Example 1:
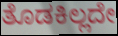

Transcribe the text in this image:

ತೊಡಕಿಲ್ಲದೇ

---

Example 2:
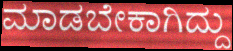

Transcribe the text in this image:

ಮಾಡಬೇಕಾಗಿದ್ದು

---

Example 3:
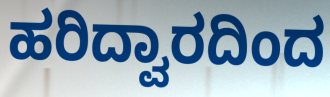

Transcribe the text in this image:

ಹರಿದ್ವಾರದಿಂದ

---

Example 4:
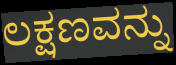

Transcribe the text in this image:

ಲಕ್ಷಣವನ್ನು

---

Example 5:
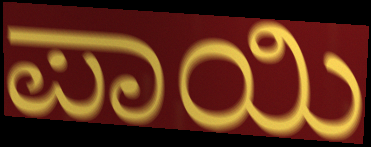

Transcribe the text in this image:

ಪಾಯಿ